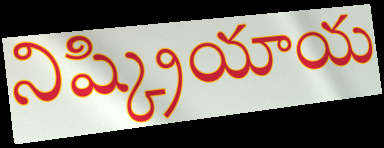
నిష్క్రియాయ